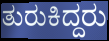
ತುರುಕಿದ್ದರು